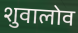
शुवालोव